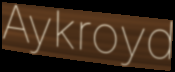
Aykroyd